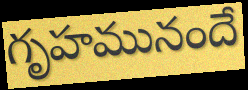
గృహమునందే